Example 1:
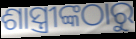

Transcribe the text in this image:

ଶାସ୍ତ୍ରୀଙ୍କଠାରୁ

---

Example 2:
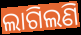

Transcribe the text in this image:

ଲାଗିଲଣି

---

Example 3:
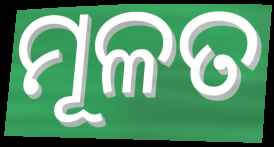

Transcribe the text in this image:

ମୂଳତ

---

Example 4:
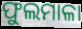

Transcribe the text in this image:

ଫୁଲମାଳା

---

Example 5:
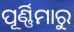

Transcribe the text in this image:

ପୂର୍ଣ୍ଣିମାରୁ